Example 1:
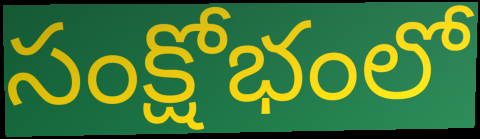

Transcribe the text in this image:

సంక్షోభంలో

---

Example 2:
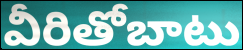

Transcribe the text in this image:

వీరితోబాటు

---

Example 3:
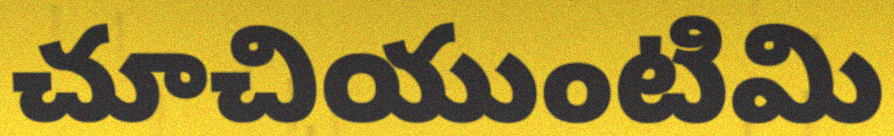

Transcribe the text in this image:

చూచియుంటిమి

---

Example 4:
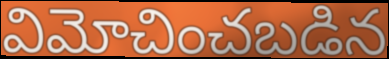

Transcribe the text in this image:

విమోచించబడిన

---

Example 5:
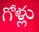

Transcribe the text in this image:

గోళ్లు